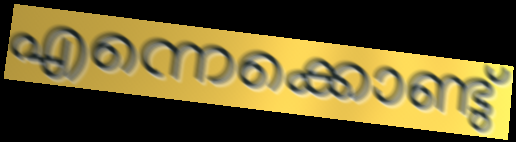
എന്നെക്കൊണ്ടു്